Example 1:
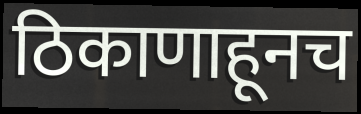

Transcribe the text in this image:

ठिकाणाहूनच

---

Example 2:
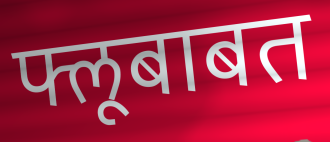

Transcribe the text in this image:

फ्लूबाबत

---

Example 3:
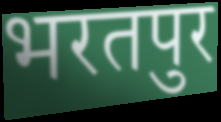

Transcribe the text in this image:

भरतपुर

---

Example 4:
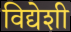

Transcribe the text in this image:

विद्येशी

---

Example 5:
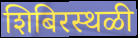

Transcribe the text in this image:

शिबिरस्थळी